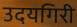
उदयगिरी